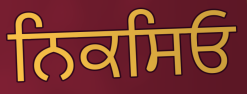
ਨਿਕਸਿਓ